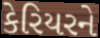
કેરિયરને